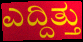
ಎದ್ದಿತ್ತು